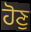
ਹੋਣੁ